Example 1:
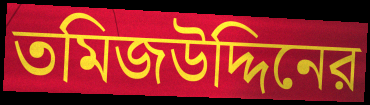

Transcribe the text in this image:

তমিজউদ্দিনের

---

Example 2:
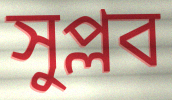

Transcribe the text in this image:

সুপ্লব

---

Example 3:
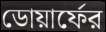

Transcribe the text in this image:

ডোয়ার্ফের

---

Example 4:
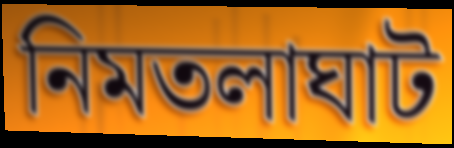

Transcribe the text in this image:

নিমতলাঘাট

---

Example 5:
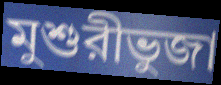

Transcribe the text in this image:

মুশুরীভুজা